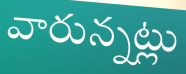
వారున్నట్లు